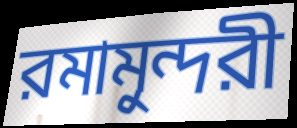
রমামুন্দরী